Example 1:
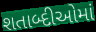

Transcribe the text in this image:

શતાબ્દીઓમાં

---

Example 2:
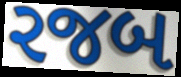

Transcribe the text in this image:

રજબ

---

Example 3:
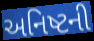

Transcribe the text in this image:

અનિષ્ટની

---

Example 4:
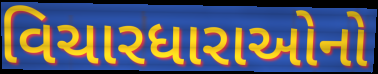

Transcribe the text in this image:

વિચારધારાઓનો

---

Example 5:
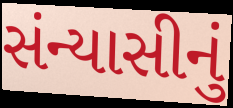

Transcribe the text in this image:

સંન્યાસીનું